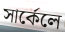
সার্কেলে